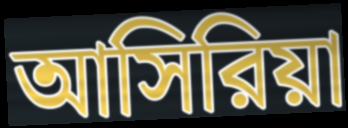
আসিরিয়া